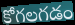
కోగలగడం